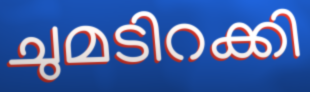
ചുമടിറക്കി